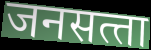
जनसत्‍ता